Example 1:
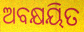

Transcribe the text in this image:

ଅବକ୍ଷୟିତ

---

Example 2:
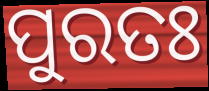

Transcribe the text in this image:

ପୁରତଃ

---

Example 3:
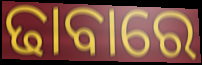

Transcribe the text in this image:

ଢାବାରେ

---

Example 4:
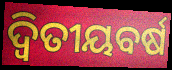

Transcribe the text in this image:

ଦ୍ୱିତୀୟବର୍ଷ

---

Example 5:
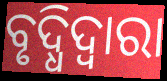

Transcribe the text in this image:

ବୃଦ୍ଧିଦ୍ୱାରା